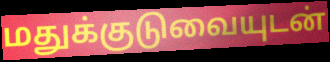
மதுக்குடுவையுடன்